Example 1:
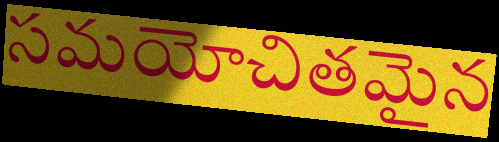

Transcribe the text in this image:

సమయోచితమైన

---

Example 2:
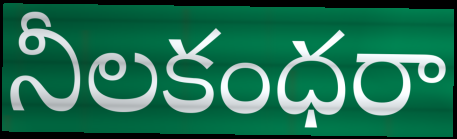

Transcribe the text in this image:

నీలకంధరా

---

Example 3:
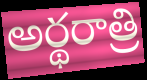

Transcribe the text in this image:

అర్థరాత్రి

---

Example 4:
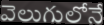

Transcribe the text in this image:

వెలుగులోనే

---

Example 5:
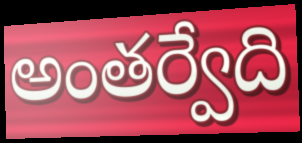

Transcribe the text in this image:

అంతర్వేది